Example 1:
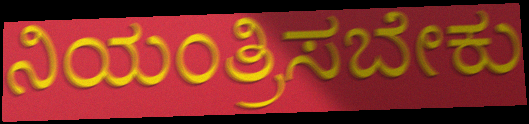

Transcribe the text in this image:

ನಿಯಂತ್ರಿಸಬೇಕು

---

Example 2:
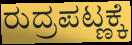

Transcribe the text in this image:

ರುದ್ರಪಟ್ಣಕ್ಕೆ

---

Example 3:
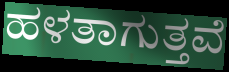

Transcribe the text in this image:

ಹಳತಾಗುತ್ತವೆ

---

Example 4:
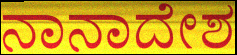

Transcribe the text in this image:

ನಾನಾದೇಶ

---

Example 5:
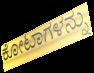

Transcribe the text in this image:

ಕೋಟಾಗಳನ್ನು